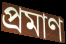
প্রমাণ